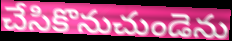
చేసికొనుచుండెను